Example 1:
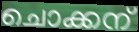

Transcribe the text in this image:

ചൊക്കന്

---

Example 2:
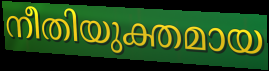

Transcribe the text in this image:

നീതിയുക്തമായ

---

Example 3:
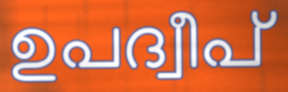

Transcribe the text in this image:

ഉപദ്വീപ്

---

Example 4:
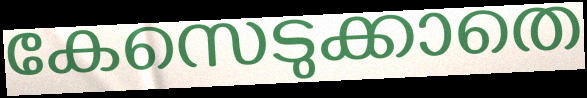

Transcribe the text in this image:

കേസെടുക്കാതെ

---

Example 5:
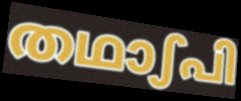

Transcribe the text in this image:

തഥാഽപി